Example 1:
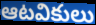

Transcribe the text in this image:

ఆటవికులు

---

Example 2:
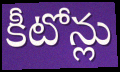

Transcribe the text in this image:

కీటోన్లు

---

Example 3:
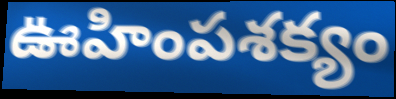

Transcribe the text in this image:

ఊహింపశక్యం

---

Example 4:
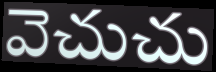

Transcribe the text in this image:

వెచుచు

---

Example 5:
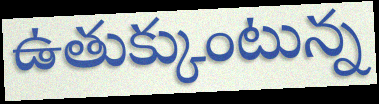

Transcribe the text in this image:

ఉతుక్కుంటున్న